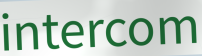
intercom